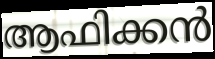
ആഫിക്കൻ